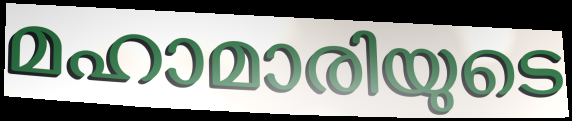
മഹാമാരിയുടെ